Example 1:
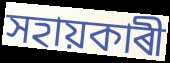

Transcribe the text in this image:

সহায়কাৰী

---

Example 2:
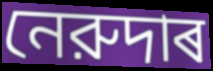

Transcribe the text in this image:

নেৰুদাৰ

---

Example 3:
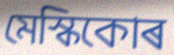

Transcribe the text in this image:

মেস্কিকোৰ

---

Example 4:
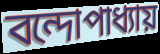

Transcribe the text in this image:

বন্দোপাধ্যায়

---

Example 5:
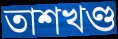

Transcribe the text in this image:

তাশখণ্ড